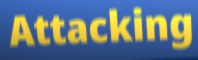
Attacking